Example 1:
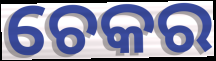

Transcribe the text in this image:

ଚେକର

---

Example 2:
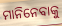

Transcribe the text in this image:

ମାନିନେବାକୁ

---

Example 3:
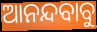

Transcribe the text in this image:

ଆନନ୍ଦବାବୁ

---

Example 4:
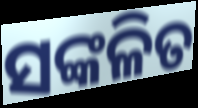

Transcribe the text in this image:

ସଙ୍କଳିତ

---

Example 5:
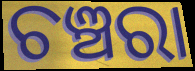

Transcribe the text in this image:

ଚଞ୍ଚରା